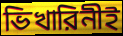
ভিখারিনীই